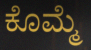
ಕೊಮ್ಮೆ